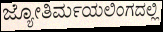
ಜ್ಯೋತಿರ್ಮಯಲಿಂಗದಲ್ಲಿ